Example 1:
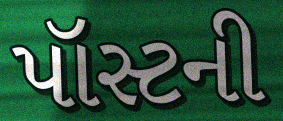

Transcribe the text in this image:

પૉસ્ટની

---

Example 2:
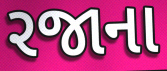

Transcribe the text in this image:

રજાના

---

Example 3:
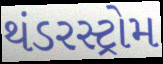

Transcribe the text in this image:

થંડરસ્ટ્રોમ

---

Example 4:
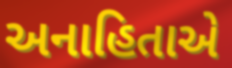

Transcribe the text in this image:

અનાહિતાએ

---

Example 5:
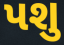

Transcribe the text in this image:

પશુ